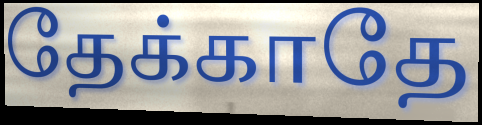
தேக்காதே